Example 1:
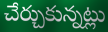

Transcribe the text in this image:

చేర్చుకున్నట్లు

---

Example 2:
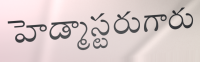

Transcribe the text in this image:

హెడ్మాస్టరుగారు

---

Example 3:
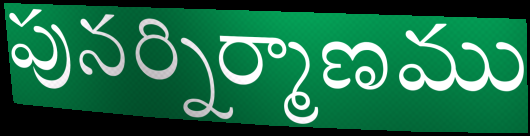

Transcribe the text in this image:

పునర్నిర్మాణము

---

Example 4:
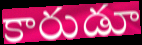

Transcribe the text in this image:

కారుడూ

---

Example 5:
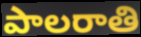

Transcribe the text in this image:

పాలరాతి